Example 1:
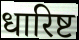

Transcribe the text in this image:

धारिष्ट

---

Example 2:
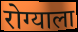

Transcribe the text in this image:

रोग्याला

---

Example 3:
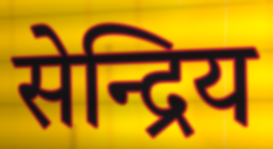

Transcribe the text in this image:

सेन्द्रिय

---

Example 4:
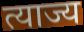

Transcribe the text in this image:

त्याज्य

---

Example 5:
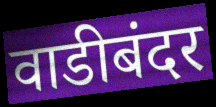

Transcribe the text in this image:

वाडीबंदर